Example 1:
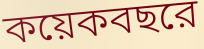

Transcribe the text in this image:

কয়েকবছরে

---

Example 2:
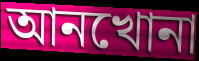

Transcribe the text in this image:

আনখোনা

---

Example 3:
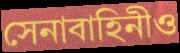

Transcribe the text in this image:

সেনাবাহিনীও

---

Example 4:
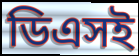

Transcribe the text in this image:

ডিএসই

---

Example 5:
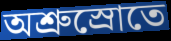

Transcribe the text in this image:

অশ্রুস্রোতে